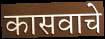
कासवाचे